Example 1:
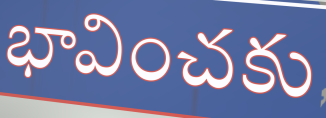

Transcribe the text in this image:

భావించకు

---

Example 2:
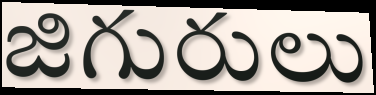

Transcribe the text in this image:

జిగురులు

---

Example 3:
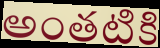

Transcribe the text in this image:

అంతటికి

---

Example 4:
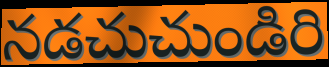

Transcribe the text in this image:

నడచుచుండిరి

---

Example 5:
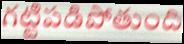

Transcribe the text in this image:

గట్టిపడిపోతుంది